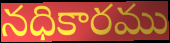
నధికారము